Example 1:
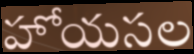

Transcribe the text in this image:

హోయసల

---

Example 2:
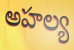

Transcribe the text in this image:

అహల్య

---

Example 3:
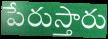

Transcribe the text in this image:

పేరుస్తారు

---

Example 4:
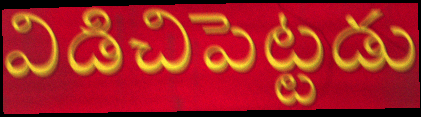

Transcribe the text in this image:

విడిచిపెట్టడు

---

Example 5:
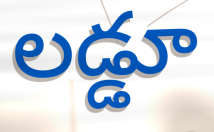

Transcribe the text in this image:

లడ్డూ